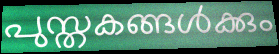
പുസ്തകങ്ങൾക്കും